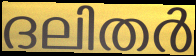
ദലിതർ